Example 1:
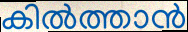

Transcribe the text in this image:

കിൽത്താൻ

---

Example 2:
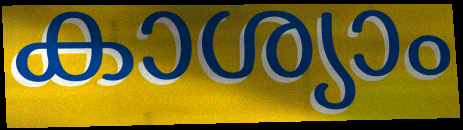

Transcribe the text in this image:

കാശ്യാം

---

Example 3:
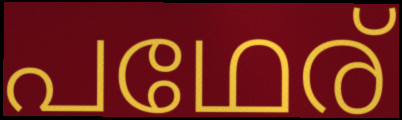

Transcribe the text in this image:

പഥേര്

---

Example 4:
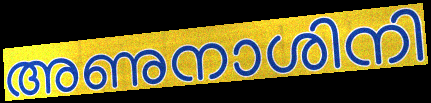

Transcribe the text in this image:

അണുനാശിനി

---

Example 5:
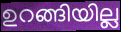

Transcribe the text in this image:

ഉറങ്ങിയില്ല